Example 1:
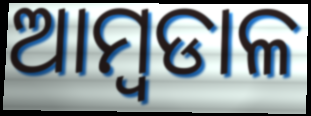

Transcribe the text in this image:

ଆମ୍ବଡାଳ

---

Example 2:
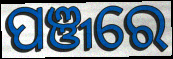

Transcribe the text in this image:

ପଞ୍ଜରେ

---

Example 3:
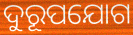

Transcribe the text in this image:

ଦୁରୂପଯୋଗ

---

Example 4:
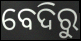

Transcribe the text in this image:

ବେଦିରୁ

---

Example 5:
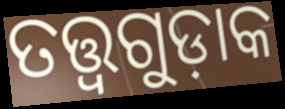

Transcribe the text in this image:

ତତ୍ତ୍ୱଗୁଡ଼ାକ